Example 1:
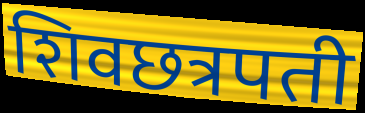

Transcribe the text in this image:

शिवछत्रपती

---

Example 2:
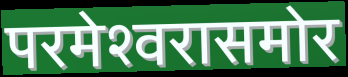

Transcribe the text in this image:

परमेश्वरासमोर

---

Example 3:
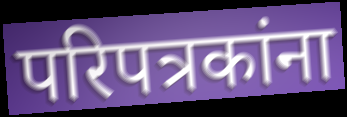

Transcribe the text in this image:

परिपत्रकांना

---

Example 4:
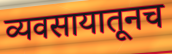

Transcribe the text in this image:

व्यवसायातूनच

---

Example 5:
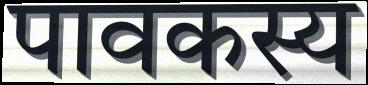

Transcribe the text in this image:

पावकस्य